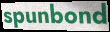
spunbond